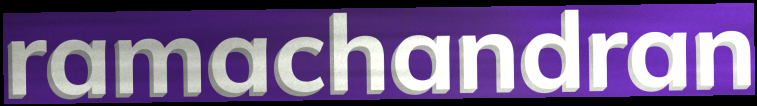
ramachandran